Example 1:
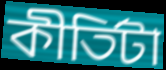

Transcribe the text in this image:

কীর্তিটা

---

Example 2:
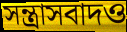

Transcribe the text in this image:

সন্ত্রাসবাদও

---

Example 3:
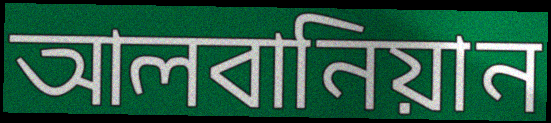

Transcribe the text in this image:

আলবানিয়ান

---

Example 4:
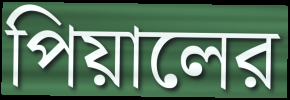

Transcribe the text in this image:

পিয়ালের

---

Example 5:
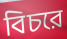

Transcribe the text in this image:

বিচরে